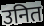
उनित